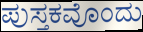
ಪುಸ್ತಕವೊಂದು